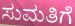
ಸುಮತಿಗೆ